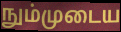
நும்முடைய